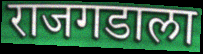
राजगडाला